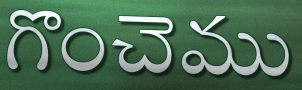
గొంచెము